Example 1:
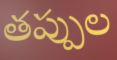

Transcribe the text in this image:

తప్పుల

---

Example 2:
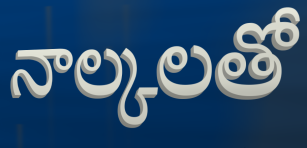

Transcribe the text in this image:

నాల్కలతో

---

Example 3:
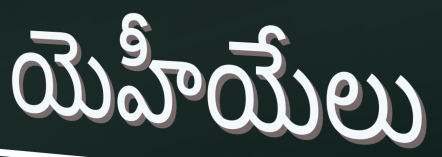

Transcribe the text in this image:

యెహీయేలు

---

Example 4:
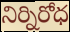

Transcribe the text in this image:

నిర్నిరోధ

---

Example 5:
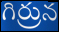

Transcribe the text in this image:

గిర్రున